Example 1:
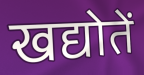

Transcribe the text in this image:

खद्योतें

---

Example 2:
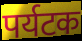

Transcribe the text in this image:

पर्यटक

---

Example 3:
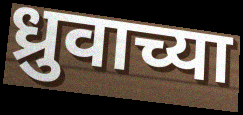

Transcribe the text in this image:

ध्रुवाच्या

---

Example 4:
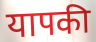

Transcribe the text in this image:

यापकी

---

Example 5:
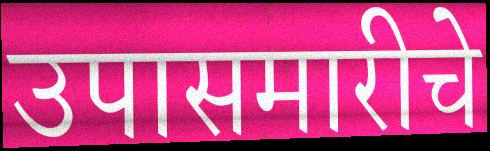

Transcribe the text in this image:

उपासमारीचे